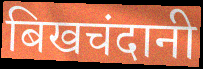
बिखचंदानी